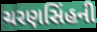
ચરણસિંહની